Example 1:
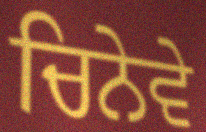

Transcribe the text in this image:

ਚਿਨੇਵੇ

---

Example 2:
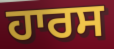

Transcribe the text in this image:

ਹਾਰਸ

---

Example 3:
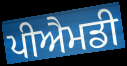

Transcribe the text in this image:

ਪੀਐਮਡੀ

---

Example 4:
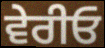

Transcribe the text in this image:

ਵੇਰੀਓ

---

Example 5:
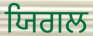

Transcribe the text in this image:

ਯਿਗਲ